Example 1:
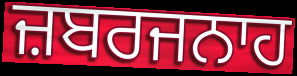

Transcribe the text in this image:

ਜ਼ਬਰਜਨਾਹ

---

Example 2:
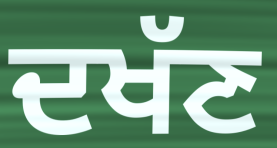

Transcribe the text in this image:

ਦਖੱਣ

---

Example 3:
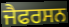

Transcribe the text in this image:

ਜੈਫਰਸਨ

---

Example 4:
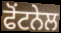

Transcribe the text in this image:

ਫੋਂਟਨੇਲ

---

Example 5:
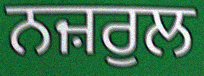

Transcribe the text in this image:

ਨਜ਼ਰੁਲ